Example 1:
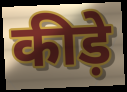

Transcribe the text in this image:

कीड़े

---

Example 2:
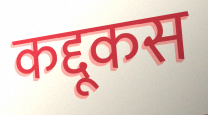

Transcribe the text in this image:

कद्दूकस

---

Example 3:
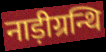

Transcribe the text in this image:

नाड़ीग्रन्थि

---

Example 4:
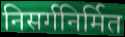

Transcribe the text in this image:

निसर्गनिर्मित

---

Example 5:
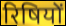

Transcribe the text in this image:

रिषियों